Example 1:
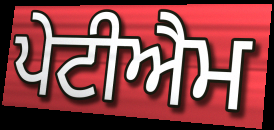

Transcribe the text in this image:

ਪੇਟੀਐਮ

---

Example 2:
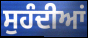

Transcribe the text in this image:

ਸੁਹੰਦੀਆਂ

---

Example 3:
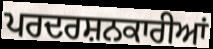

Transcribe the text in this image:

ਪਰਦਰਸ਼ਨਕਾਰੀਆਂ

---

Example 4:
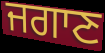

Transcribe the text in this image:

ਜਗਾਣ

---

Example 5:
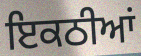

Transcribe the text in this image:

ਇਕਠੀਆਂ